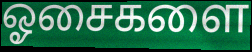
ஓசைகளை